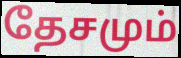
தேசமும்